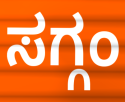
ಸಗ್ಗಂ